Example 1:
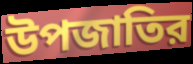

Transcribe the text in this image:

উপজাতির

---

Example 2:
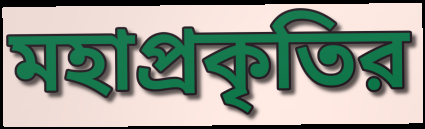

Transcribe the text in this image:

মহাপ্রকৃতির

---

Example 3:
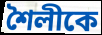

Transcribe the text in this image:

শৈলীকে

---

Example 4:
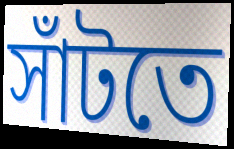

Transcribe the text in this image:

সাঁটতে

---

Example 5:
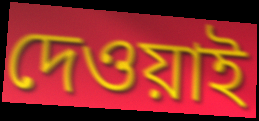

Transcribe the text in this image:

দেওয়াই